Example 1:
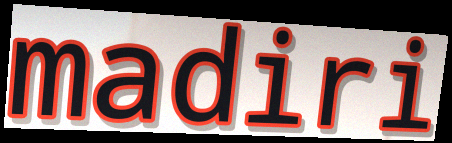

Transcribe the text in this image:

madiri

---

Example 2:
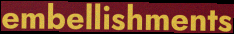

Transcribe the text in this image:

embellishments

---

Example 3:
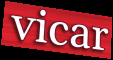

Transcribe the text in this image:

vicar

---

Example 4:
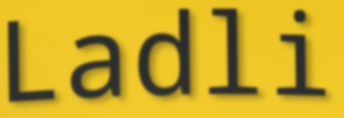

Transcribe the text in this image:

Ladli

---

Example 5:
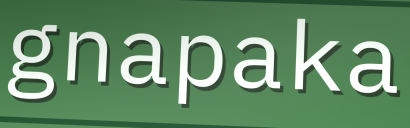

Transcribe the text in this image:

gnapaka